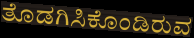
ತೊಡಗಿಸಿಕೊಂಡಿರುವ